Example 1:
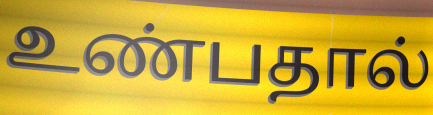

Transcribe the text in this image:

உண்பதால்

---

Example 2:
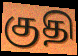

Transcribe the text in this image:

குதி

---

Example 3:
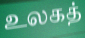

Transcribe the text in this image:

உலகத்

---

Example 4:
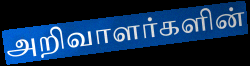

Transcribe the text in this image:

அறிவாளர்களின்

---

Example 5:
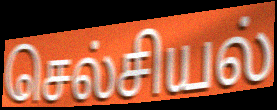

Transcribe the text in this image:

செல்சியல்